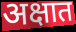
अक्षात